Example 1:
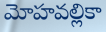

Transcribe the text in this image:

మోహవల్లికా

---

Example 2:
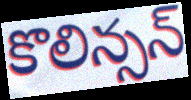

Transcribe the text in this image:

కొలిన్సన్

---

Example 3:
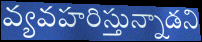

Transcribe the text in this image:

వ్యవహరిస్తున్నాడని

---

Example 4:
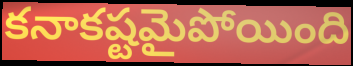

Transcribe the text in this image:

కనాకష్టమైపోయింది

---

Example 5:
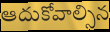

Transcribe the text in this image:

ఆదుకోవాల్సిన